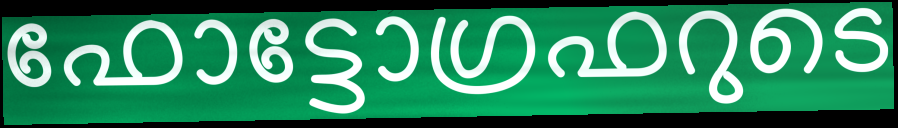
ഫോട്ടോഗ്രഫറുടെ